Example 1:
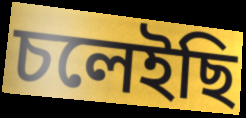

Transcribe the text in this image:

চলেইছি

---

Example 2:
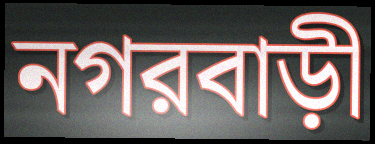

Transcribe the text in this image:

নগরবাড়ী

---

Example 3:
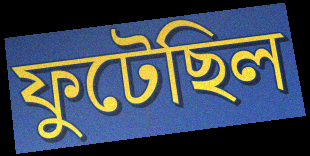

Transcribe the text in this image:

ফুটেছিল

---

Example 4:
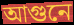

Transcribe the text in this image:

আগুনে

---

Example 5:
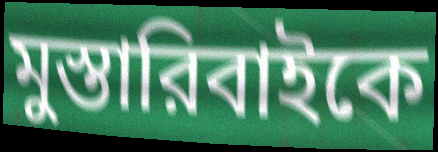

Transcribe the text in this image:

মুস্তারিবাইকে